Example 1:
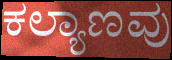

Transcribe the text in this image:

ಕಲ್ಯಾಣವು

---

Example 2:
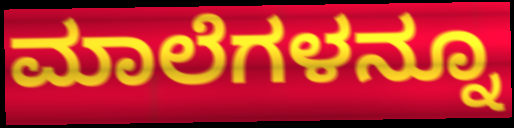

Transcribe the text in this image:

ಮಾಲೆಗಳನ್ನೂ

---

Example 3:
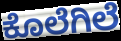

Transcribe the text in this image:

ಕೊಲೆಗಿಲೆ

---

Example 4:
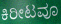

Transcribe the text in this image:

ಕಿರೀಟವೂ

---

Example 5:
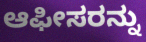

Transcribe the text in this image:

ಆಫೀಸರನ್ನು